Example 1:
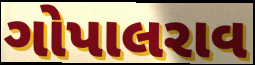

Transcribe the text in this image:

ગોપાલરાવ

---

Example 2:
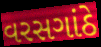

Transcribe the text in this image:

વરસગાંઠે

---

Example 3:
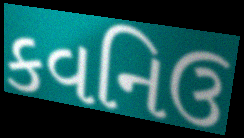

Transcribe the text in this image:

કવનિઉ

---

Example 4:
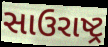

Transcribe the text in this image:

સાઉરાષ્ટ્ર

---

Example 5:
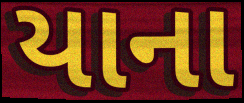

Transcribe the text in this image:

યાના